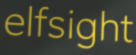
elfsight